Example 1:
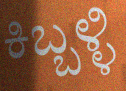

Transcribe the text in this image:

ಕಿಬ್ಬಳ್ಳಿ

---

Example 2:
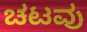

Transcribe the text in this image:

ಚಟವು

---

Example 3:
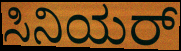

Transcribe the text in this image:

ಸಿನಿಯರ್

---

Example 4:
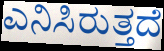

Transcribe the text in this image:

ಎನಿಸಿರುತ್ತದೆ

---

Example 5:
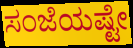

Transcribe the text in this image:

ಸಂಜೆಯಷ್ಟೇ